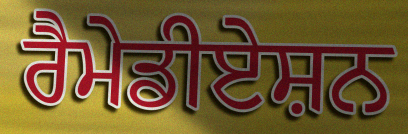
ਰੈਮੇਡੀਏਸ਼ਨ